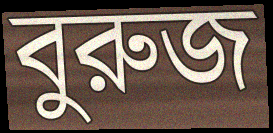
বুরুজ